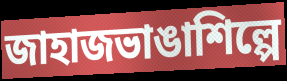
জাহাজভাঙাশিল্পে